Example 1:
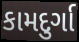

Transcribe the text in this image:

કામદુર્ગા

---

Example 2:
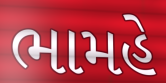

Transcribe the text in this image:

ભામહે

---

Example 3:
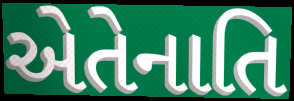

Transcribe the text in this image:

એતેનાતિ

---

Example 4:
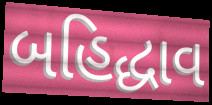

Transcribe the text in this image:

બહિદ્ધાવ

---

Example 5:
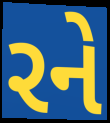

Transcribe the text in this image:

રને